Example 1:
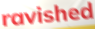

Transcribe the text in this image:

ravished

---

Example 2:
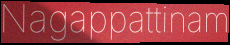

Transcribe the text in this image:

Nagappattinam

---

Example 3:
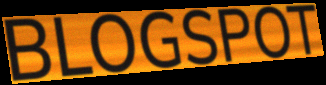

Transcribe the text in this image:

BLOGSPOT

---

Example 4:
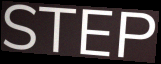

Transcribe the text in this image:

STEP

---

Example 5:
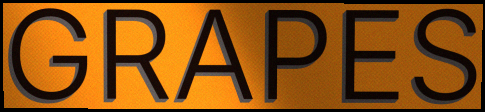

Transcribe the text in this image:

GRAPES